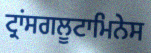
ਟ੍ਰਾਂਸਗਲੂਟਾਮਿਨੇਸ